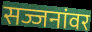
सज्जनांवर